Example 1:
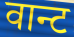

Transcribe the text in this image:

वान्ट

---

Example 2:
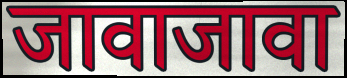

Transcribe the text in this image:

जावाजावा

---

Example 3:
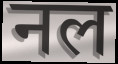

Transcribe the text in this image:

नल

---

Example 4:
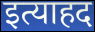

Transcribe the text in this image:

इत्याहद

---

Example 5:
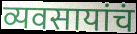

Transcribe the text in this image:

व्यवसायांचं